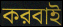
করবাই